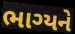
ભાગ્યને